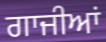
ਗਾਜੀਆਂ